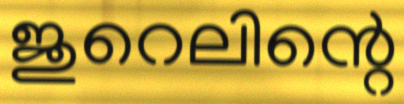
ജുറെലിന്റെ